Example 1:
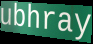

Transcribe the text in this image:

ubhray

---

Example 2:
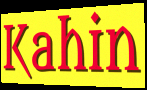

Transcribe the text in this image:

Kahin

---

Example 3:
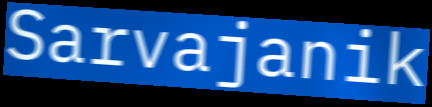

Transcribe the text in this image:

Sarvajanik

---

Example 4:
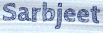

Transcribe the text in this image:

Sarbjeet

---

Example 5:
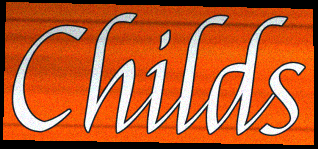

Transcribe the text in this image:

Childs